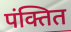
पंक्तित